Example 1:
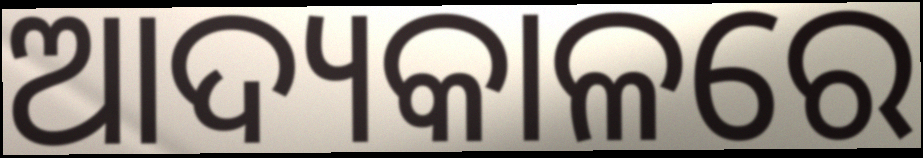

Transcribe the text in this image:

ଆଦ୍ୟକାଳରେ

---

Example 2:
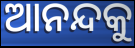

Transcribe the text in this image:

ଆନନ୍ଦକୁ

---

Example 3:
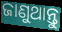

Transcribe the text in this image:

ଜାଣୁଥାନ୍ତୁ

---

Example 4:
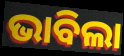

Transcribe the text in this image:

ଭାବିଲା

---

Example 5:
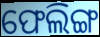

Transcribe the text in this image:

ଫେଲିଙ୍ଗ